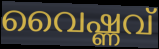
വൈഷ്ണവ്